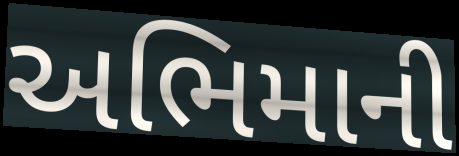
અભિમાની